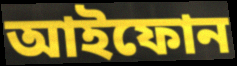
আইফোন